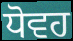
ਧੋਵਹ